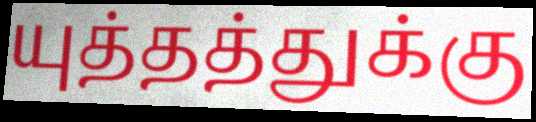
யுத்தத்துக்கு